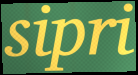
sipri